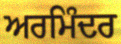
ਅਰਮਿੰਦਰ